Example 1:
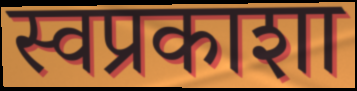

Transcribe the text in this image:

स्वप्रकाशा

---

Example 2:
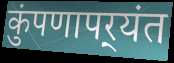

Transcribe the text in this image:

कुंपणापर्यंत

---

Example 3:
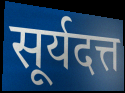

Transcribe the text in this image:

सूर्यदत्त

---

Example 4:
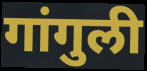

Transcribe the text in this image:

गांगुली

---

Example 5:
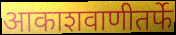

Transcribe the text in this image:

आकाशवाणीतर्फे